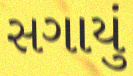
સગાયું